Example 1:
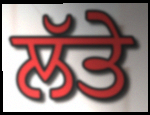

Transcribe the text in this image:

ਲੱਤੇ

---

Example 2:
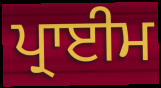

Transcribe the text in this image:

ਪ੍ਰਾਈਮ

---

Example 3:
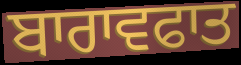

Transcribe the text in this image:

ਬਾਰਾਵਫਾਤ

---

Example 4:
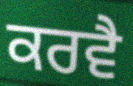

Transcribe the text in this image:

ਕਰਵੈ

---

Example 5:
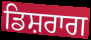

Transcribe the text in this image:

ਡਿਸ਼ਰਾਗ